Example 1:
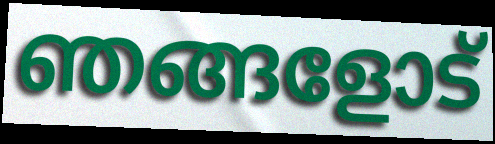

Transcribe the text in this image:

ഞങ്ങളോട്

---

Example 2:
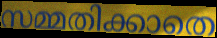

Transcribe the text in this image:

സമ്മതിക്കാതെ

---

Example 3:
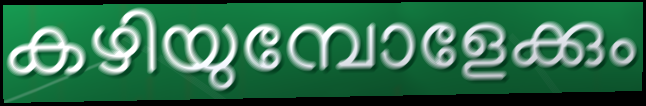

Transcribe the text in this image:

കഴിയുമ്പോളേക്കും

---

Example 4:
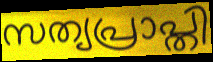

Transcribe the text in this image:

സത്യപ്രാപ്തി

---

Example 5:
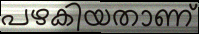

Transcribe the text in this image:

പഴകിയതാണ്